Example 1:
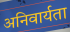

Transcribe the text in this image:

अनिवार्यता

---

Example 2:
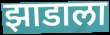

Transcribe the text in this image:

झाडाला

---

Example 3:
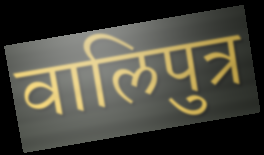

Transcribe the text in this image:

वालिपुत्र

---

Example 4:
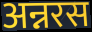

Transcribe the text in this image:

अन्नरस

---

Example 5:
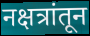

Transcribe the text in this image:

नक्षत्रांतून